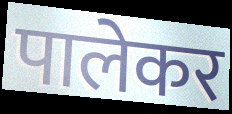
पालेकर